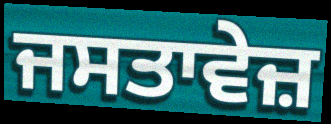
ਜਸਤਾਵੇਜ਼